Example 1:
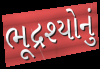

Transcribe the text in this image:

ભૂદ્રશ્યોનું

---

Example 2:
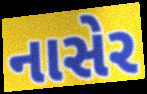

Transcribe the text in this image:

નાસેર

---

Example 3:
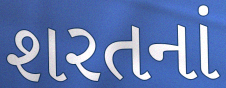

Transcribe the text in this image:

શરતનાં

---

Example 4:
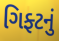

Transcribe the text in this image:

ગિફ્ટનું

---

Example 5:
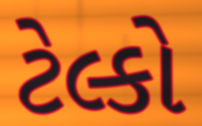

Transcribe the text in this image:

ટેલ્કો